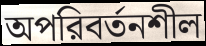
অপরিবর্তনশীল